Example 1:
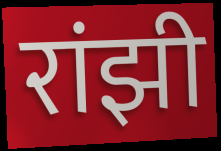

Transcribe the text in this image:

रांझी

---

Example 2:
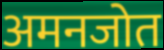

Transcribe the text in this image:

अमनजोत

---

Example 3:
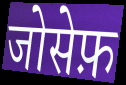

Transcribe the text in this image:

जोसेफ़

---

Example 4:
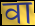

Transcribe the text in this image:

वा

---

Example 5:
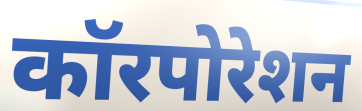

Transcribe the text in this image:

कॉरपोरेशन